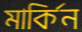
মার্কিন